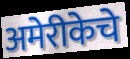
अमेरीकेचे